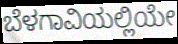
ಬೆಳಗಾವಿಯಲ್ಲಿಯೇ